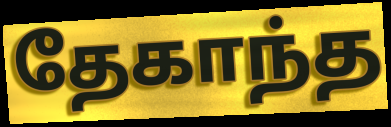
தேகாந்த